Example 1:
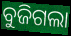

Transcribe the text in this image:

ବୁଜିଗଲା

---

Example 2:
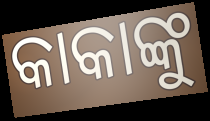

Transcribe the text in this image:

କାକାଙ୍କୁ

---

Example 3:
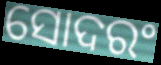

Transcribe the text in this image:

ସୋଦରଂ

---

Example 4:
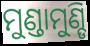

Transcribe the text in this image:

ମୁଣ୍ଡାମୁଣ୍ଡି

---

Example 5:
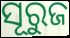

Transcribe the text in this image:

ସୂରୁଜ